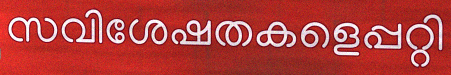
സവിശേഷതകളെപ്പറ്റി